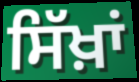
ਸਿੱਖ਼ਾਂ